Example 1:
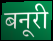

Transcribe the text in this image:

बनूरी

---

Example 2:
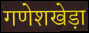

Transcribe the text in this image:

गणेशखेड़ा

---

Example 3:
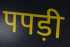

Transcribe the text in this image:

पपड़ी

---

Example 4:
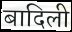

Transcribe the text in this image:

बादिली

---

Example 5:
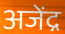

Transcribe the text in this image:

अजेंद्र